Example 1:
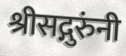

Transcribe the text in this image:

श्रीसद्गुरुंनी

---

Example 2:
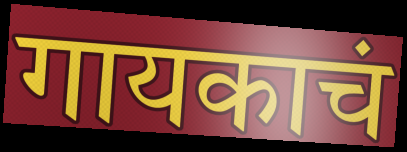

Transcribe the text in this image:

गायकाचं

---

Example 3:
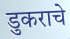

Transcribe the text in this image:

डुकराचे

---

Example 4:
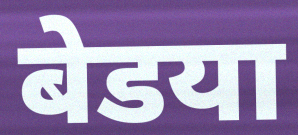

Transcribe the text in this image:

बेडया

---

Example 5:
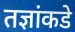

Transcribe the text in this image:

तज्ञांकडे